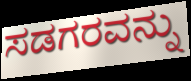
ಸಡಗರವನ್ನು